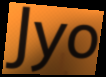
Jyo